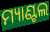
ମ୍ୟାଣ୍ଟଲ